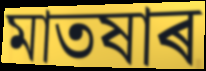
মাতষাৰ